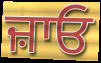
ਜ਼ਾਓ